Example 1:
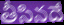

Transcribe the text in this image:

తీసినదే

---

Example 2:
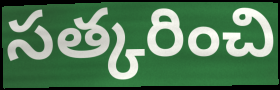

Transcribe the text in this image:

సత్కరించి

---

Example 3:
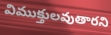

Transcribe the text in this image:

విముక్తులవుతారని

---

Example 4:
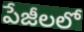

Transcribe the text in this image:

పేజీలలో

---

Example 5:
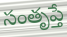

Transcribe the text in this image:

సంతృప్తే